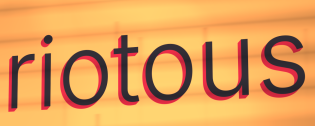
riotous